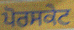
ਪੋਰਸਕੇਟ